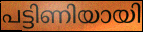
പട്ടിണിയായി